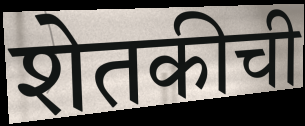
शेतकीची